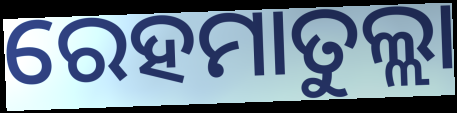
ରେହମାତୁଲ୍ଲା